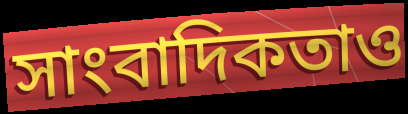
সাংবাদিকতাও